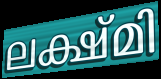
ലക്ഷ്‌മി